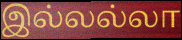
இல்லல்லா